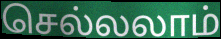
செல்லலாம்